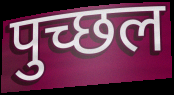
पुच्छल